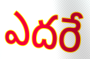
ఎదరే